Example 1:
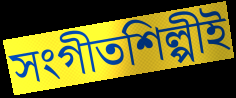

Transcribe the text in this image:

সংগীতশিল্পীই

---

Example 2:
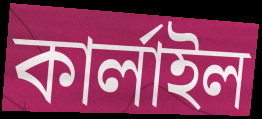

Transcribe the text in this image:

কার্লাইল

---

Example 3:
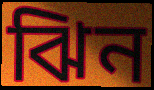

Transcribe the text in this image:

ঝিন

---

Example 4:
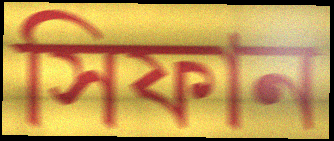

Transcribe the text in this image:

সিফান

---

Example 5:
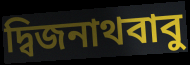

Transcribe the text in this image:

দ্বিজনাথবাবু